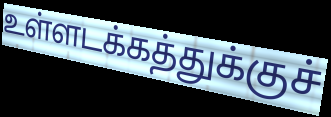
உள்ளடக்கத்துக்குச்